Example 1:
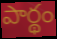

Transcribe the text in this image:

పార్థం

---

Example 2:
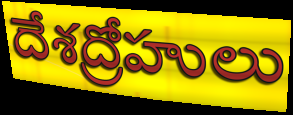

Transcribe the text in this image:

దేశద్రోహులు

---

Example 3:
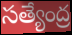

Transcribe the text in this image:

సత్యేంద్ర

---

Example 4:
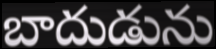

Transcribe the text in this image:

బాదుడును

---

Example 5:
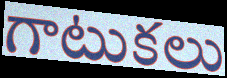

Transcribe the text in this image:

గాటుకలు